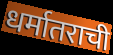
धर्मातराची